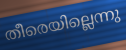
തീരെയില്ലെന്നു